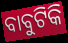
ବାବୁଟିକି